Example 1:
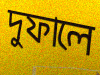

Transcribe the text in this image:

দুফালে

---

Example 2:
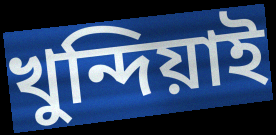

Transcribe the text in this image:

খুন্দিয়াই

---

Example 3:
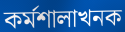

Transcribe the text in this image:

কৰ্মশালাখনক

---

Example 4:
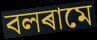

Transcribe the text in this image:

বলৰামে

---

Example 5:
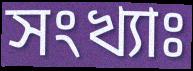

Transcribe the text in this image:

সংখ্যাঃ